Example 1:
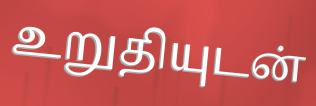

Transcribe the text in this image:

உறுதியுடன்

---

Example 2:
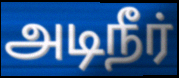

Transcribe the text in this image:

அடிநீர்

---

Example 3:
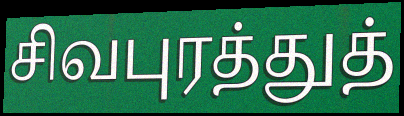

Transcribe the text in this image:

சிவபுரத்துத்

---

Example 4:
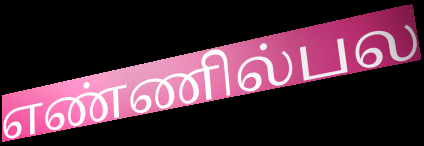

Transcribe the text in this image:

எண்ணில்பல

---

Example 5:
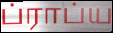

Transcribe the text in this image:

ப்ராப்ய